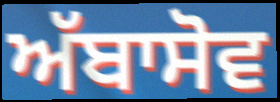
ਅੱਬਾਸੋਵ